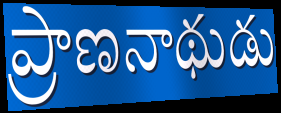
ప్రాణనాథుడు